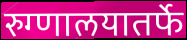
रुग्णालयातर्फे